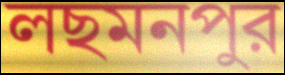
লছমনপুর